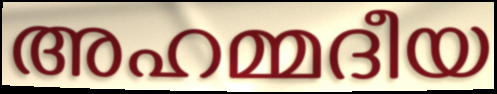
അഹമ്മദീയ